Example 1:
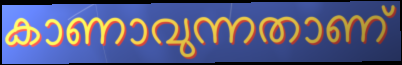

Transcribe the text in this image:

കാണാവുന്നതാണ്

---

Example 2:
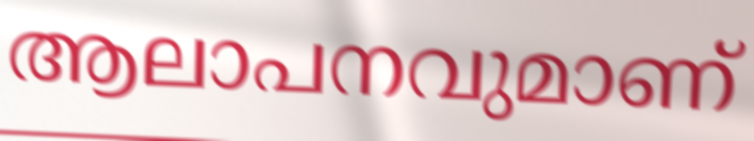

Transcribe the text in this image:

ആലാപനവുമാണ്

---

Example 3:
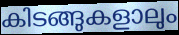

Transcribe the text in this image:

കിടങ്ങുകളാലും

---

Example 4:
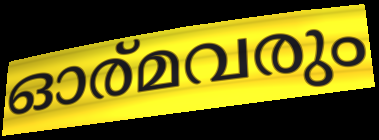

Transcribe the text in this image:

ഓര്മവരും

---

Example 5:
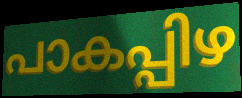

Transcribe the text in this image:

പാകപ്പിഴ